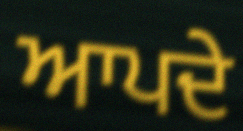
ਆਪਦੇ